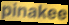
pinakee